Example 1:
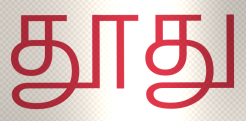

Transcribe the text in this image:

தூது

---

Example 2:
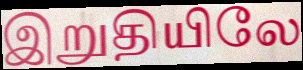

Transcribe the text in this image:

இறுதியிலே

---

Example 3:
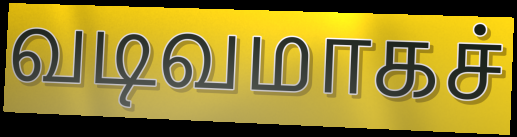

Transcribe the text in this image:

வடிவமாகச்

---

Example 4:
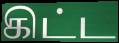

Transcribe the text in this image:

கிட்ட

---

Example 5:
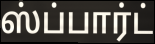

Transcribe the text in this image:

ஸ்ப்பார்ட்